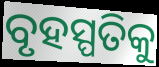
ବୃହସ୍ପତିକୁ